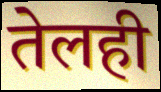
तेलही